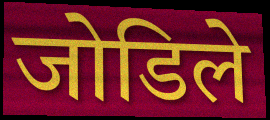
जोडिले